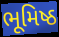
ભૂમિષ્ઠ